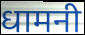
धामनी